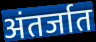
अंतर्जात